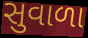
સુવાળા